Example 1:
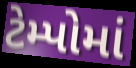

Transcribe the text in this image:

ટેમ્પોમાં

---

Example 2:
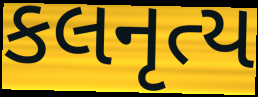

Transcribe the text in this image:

કલનૃત્ય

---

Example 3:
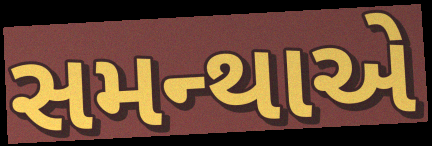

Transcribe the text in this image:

સમન્થાએ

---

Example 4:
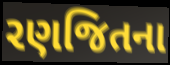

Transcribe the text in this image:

રણજિતના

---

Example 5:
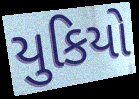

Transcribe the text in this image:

યુકિયો